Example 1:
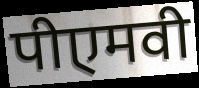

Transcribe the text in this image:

पीएमवी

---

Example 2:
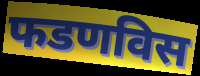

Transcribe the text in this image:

फडणविस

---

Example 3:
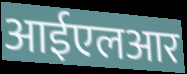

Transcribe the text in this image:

आईएलआर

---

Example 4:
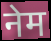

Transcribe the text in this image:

नेम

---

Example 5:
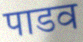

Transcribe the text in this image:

पाडव